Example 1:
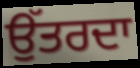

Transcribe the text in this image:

ਉੱਤਰਦਾ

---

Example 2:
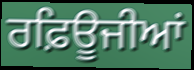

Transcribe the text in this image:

ਰਫ਼ਿਊਜੀਆਂ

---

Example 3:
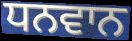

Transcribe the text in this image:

ਧਨਵਾਨ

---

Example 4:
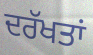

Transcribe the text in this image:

ਦਰੱਖਤਾਂ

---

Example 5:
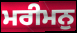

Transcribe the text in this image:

ਮਰੀਮਨੁ